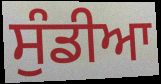
ਸੁੰਡੀਆ